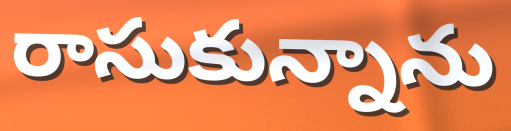
రాసుకున్నాను